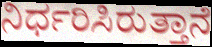
ನಿರ್ಧರಿಸಿರುತ್ತಾನೆ